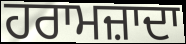
ਹਰਾਮਜ਼ਾਦਾ